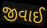
જીવાઈ